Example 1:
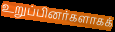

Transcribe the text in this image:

உறுப்பினர்களாகக்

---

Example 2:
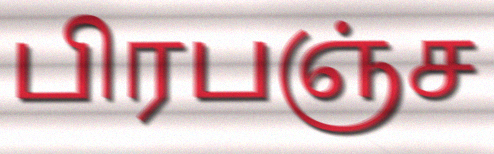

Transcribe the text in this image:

பிரபஞ்ச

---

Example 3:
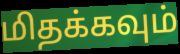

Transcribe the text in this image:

மிதக்கவும்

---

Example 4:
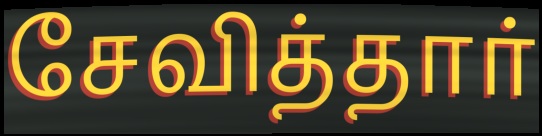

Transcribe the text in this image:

சேவித்தார்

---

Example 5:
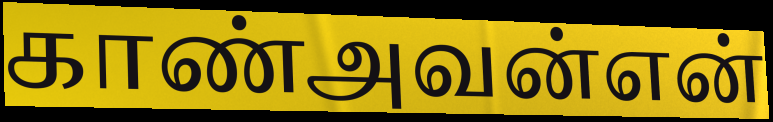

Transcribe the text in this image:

காண்அவன்என்